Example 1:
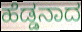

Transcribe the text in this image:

ಹೆಡ್ಡನಾದ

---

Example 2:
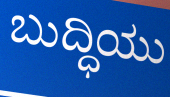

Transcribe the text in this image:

ಬುದ್ಧಿಯು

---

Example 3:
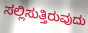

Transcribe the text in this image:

ಸಲ್ಲಿಸುತ್ತಿರುವುದು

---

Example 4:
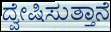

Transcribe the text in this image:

ದ್ವೇಷಿಸುತ್ತಾನೆ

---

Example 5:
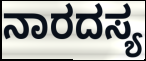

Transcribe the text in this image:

ನಾರದಸ್ಯ